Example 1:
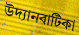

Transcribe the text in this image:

উদ্যানবাটিকা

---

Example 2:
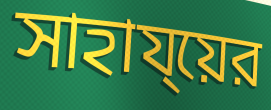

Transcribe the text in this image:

সাহায্য়ের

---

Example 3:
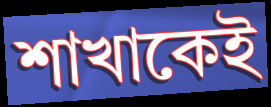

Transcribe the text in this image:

শাখাকেই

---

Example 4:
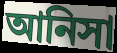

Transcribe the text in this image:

আনিসা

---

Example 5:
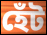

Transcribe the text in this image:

হেঁট